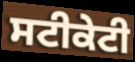
ਸਟੀਕੇਟੀ